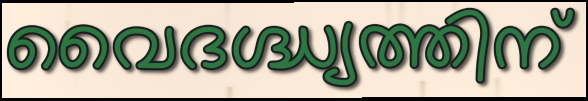
വൈദഗ്ദ്ധ്യത്തിന്